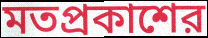
মতপ্রকাশের